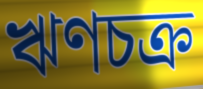
ঋণচক্র